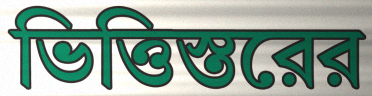
ভিত্তিস্তরের